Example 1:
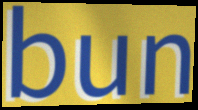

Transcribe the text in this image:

bun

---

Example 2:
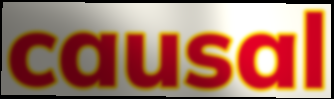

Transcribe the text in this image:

causal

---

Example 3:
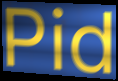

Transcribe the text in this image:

Pid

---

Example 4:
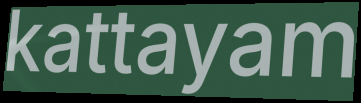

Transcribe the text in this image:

kattayam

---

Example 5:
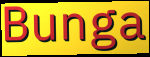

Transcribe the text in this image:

Bunga